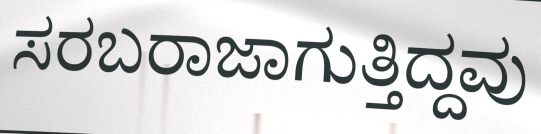
ಸರಬರಾಜಾಗುತ್ತಿದ್ದವು